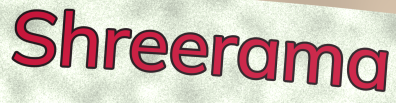
Shreerama